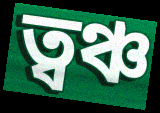
ত্বঞ্চ